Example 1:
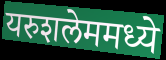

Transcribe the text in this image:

यरुशलेममध्ये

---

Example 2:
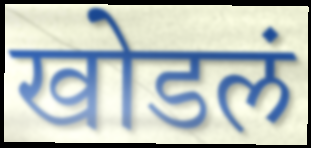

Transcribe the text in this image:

खोडलं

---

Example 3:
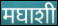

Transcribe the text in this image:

मघाशी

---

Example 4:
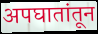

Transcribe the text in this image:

अपघातांतून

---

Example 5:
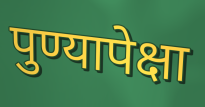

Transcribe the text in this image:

पुण्यापेक्षा